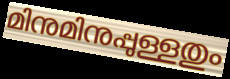
മിനുമിനുപ്പുള്ളതും